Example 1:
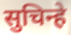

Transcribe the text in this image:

सुचिन्हे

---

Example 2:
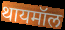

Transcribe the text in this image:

थायमॉल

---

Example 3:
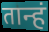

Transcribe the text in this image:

तान्हं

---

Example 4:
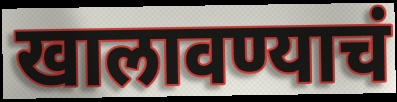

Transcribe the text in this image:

खालावण्याचं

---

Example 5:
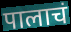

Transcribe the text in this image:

पालाचं